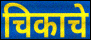
चिकाचे